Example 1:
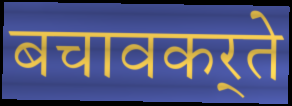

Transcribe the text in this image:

बचावकर्ते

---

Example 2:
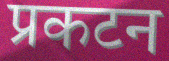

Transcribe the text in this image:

प्रकटन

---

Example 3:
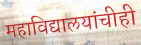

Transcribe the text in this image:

महाविद्यालयांचीही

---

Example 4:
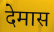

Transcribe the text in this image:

देमास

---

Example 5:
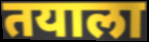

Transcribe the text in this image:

तयाला